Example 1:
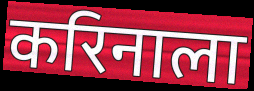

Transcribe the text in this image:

करिनाला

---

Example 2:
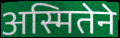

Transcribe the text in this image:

अस्मितेने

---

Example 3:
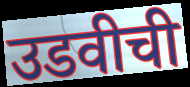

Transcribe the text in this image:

उडवीची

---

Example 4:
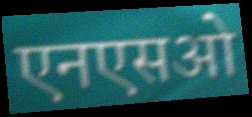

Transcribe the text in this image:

एनएसओ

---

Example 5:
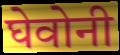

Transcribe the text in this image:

घेवोनी